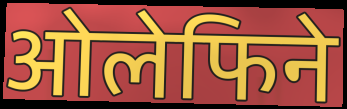
ओलेफिने